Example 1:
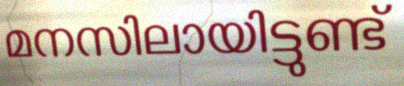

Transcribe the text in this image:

മനസിലായിട്ടുണ്ട്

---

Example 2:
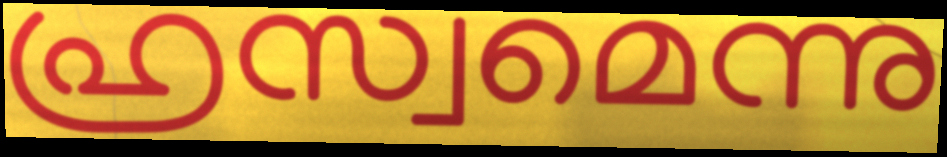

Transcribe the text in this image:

ഹ്രസ്വമെന്നു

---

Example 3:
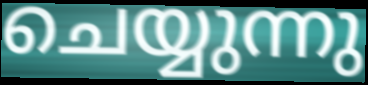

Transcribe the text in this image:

ചെയ്യുന്നു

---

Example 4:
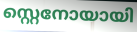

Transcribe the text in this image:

സ്റ്റെനോയായി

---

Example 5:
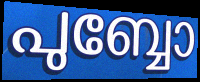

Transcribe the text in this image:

പുബ്ബോ